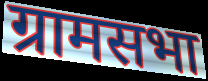
ग्रामसभा